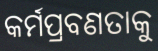
କର୍ମପ୍ରବଣତାକୁ